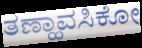
ತಣ್ಹಾವಸಿಕೋ